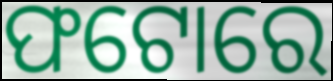
ଫଟୋରେ